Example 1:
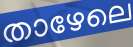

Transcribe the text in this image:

താഴേലെ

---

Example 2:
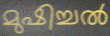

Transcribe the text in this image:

മുഷിച്ചൽ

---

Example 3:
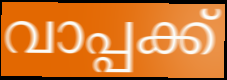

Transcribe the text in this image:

വാപ്പക്ക്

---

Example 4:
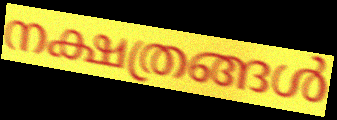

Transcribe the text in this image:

നക്ഷത്രങ്ങൾ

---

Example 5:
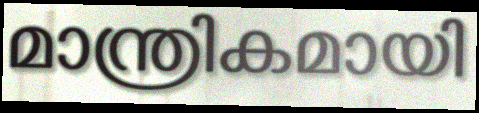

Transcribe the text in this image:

മാന്ത്രികമായി